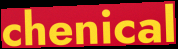
chenical